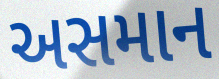
અસમાન